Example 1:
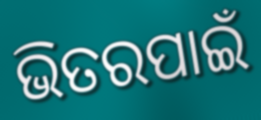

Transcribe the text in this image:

ଭିତରପାଇଁ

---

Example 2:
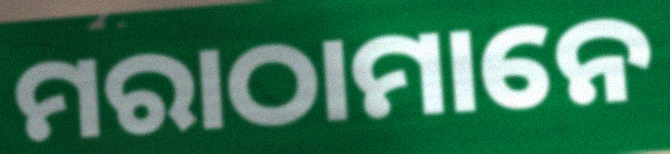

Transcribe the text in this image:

ମରାଠାମାନେ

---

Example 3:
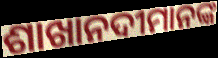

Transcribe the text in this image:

ଶାଖାନଦୀମାନଙ୍କ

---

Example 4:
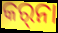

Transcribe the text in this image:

କର୍‌ନା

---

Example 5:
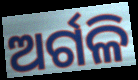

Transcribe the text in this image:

ଅର୍ଗଳି